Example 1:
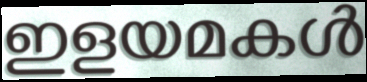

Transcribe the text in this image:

ഇളയമകൾ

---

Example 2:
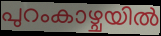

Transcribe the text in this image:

പുറംകാഴ്ചയിൽ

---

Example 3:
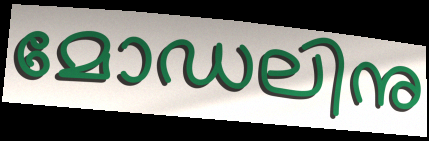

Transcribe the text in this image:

മോഡലിനു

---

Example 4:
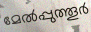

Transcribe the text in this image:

മേൽപ്പുത്തൂർ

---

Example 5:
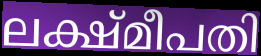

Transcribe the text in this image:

ലക്ഷ്മീപതി